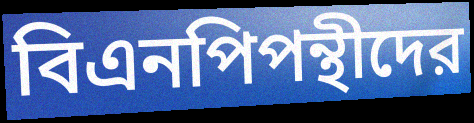
বিএনপিপন্থীদের